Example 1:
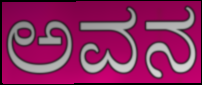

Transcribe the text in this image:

ಅವನ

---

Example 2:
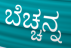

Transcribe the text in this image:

ಬೆಚ್ಚನ್ನ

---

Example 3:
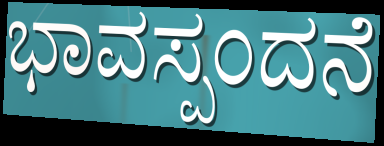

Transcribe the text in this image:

ಭಾವಸ್ಪಂದನೆ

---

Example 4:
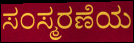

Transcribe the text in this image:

ಸಂಸ್ಮರಣೆಯ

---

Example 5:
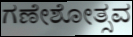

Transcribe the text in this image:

ಗಣೇಶೋತ್ಸವ